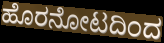
ಹೊರನೋಟದಿಂದ